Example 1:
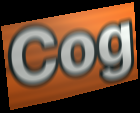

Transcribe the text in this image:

Cog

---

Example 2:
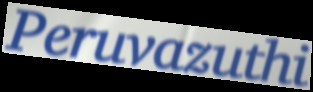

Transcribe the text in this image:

Peruvazuthi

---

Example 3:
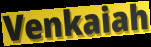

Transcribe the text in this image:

Venkaiah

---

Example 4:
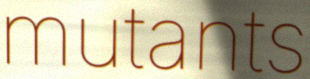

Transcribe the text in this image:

mutants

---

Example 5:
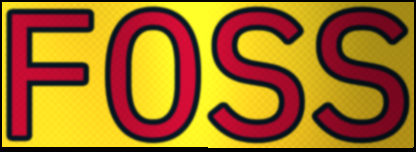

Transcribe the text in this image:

FOSS